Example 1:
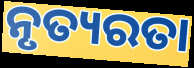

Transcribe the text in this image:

ନୃତ୍ୟରତା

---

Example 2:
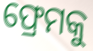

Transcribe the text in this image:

ଫ୍ରେମକୁ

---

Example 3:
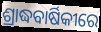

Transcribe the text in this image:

ଶ୍ରାଦ୍ଧବାର୍ଷିକୀରେ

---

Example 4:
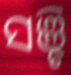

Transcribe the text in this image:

ସଞ୍ଚି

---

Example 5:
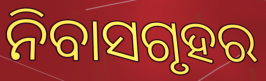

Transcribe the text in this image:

ନିବାସଗୃହର